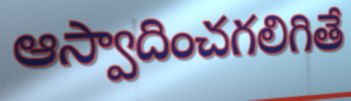
ఆస్వాదించగలిగితే